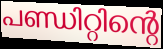
പണ്ഡിറ്റിന്റെ